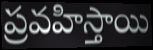
ప్రవహిస్తాయి